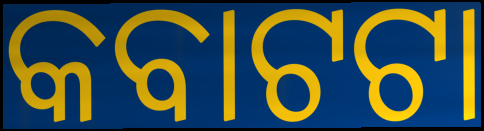
କବାଟଟା